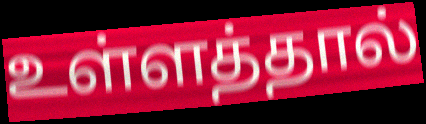
உள்ளத்தால்